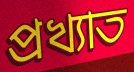
প্ৰখ্যাত